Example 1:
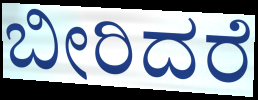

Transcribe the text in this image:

ಬೀರಿದರೆ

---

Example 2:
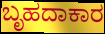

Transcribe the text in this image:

ಬೃಹದಾಕಾರ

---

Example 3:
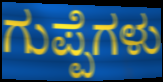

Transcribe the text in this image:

ಗುಪ್ಪೆಗಳು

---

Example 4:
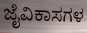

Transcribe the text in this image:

ಜೈವಿಕಾಸಗಳ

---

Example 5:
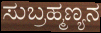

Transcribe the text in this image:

ಸುಬ್ರಹ್ಮಣ್ಯನ